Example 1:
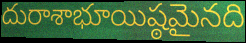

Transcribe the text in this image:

దురాశాభూయిష్ఠమైనది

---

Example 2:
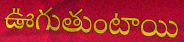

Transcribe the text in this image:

ఊగుతుంటాయి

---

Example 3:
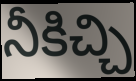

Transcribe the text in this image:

నీకిచ్చి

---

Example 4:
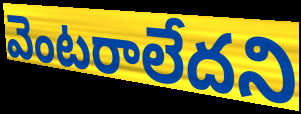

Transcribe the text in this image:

వెంటరాలేదని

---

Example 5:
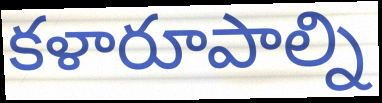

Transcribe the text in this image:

కళారూపాల్ని